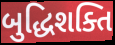
બુદ્ધિશક્તિ